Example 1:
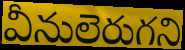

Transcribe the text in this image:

వీనులెరుగని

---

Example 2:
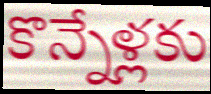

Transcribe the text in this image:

కొన్నేళ్లకు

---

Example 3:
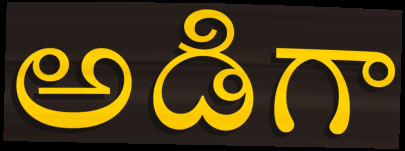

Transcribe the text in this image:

అడిగా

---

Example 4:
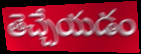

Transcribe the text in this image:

తెచ్చేయడం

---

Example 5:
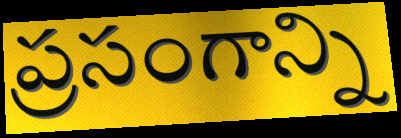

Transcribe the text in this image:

ప్రసంగాన్ని